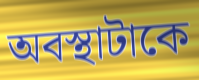
অবস্থাটাকে